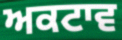
ਅਕਟਾਵ